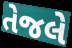
તેજલે